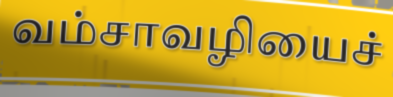
வம்சாவழியைச்